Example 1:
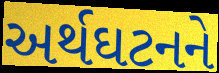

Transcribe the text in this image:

અર્થઘટનને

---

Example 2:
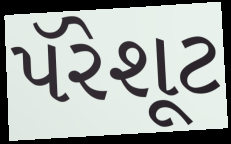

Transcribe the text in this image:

પૅરેશૂટ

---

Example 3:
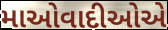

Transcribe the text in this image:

માઓવાદીઓએ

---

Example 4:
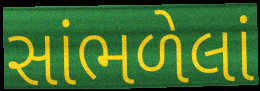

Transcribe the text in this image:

સાંભળેલાં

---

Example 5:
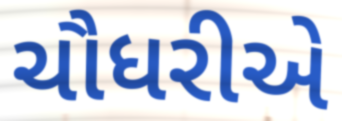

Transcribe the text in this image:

ચૌધરીએ